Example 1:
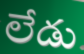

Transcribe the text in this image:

లేడు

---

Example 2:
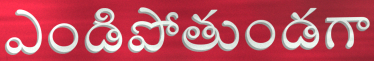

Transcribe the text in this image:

ఎండిపోతుండగా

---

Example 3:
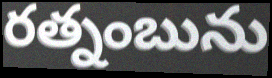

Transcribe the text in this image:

రత్నంబును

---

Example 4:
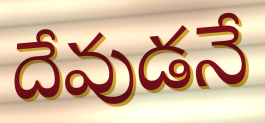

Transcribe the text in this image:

దేవుడనే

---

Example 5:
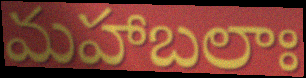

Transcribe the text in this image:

మహాబలాః